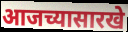
आजच्यासारखे